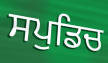
ਸਪੁਡਿਚ